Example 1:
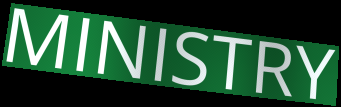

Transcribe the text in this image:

MINISTRY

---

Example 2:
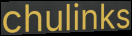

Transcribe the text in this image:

chulinks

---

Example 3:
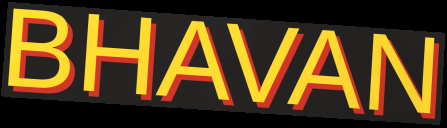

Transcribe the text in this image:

BHAVAN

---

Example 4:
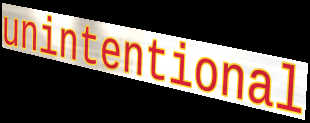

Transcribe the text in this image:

unintentional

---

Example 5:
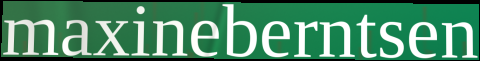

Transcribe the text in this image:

maxineberntsen